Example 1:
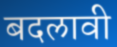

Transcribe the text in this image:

बदलावी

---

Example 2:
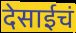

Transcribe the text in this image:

देसाईचं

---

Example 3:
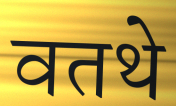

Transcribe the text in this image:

वतथे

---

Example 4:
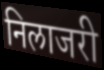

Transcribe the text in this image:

निलाजरी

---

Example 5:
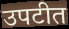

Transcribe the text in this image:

उपटीत